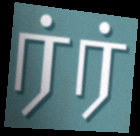
ர்ர்